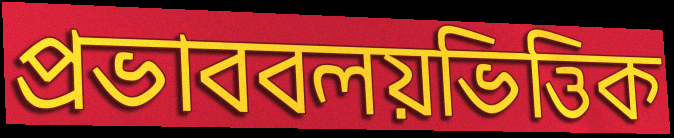
প্রভাববলয়ভিত্তিক